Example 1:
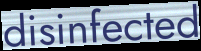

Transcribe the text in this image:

disinfected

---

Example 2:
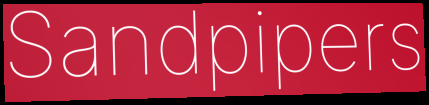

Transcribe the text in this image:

Sandpipers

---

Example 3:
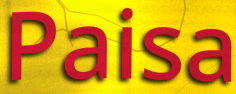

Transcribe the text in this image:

Paisa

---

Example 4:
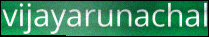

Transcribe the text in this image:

vijayarunachal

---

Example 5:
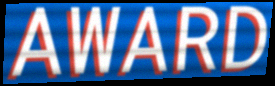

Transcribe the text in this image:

AWARD